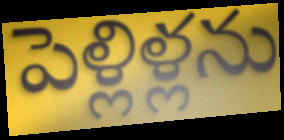
పెళ్లిళ్లను